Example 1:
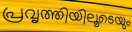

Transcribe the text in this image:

പ്രവൃത്തിയിലൂടെയും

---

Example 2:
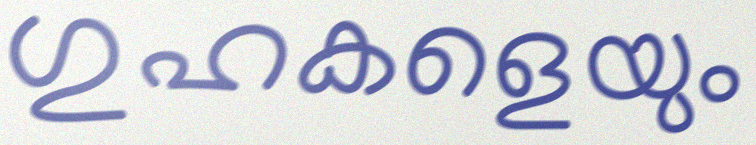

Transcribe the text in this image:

ഗുഹകളെയും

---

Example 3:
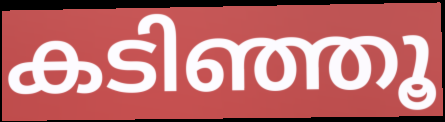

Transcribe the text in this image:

കടിഞ്ഞൂ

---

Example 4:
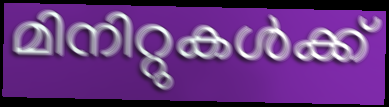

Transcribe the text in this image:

മിനിറ്റുകൾക്ക്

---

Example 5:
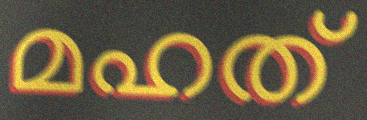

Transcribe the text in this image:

മഹത്